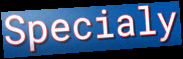
Specialy